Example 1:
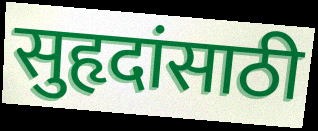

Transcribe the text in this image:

सुहृदांसाठी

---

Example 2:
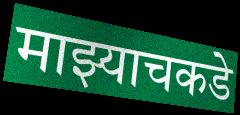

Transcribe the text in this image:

माझ्याचकडे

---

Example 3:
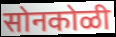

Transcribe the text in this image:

सोनकोळी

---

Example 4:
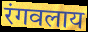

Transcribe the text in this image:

रंगवलाय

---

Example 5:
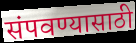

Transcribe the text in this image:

संपवण्यासाठी